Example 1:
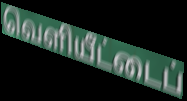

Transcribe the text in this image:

வெளியீட்டைப்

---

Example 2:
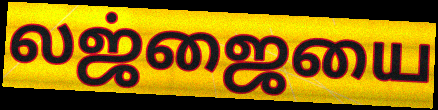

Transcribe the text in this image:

லஜ்ஜையை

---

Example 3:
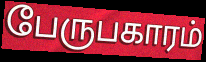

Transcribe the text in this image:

பேருபகாரம்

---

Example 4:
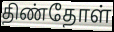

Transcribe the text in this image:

திண்தோள்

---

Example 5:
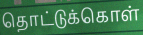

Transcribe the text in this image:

தொட்டுக்கொள்